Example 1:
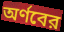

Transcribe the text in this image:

অর্ণবের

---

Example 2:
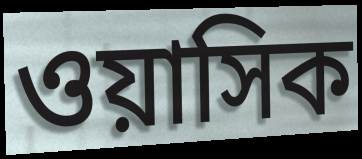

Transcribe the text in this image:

ওয়াসিক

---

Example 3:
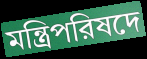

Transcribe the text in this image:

মন্ত্রিপরিষদে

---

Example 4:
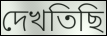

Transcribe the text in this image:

দেখতিছি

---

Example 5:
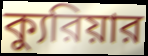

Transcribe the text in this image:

ক্যুরিয়ার